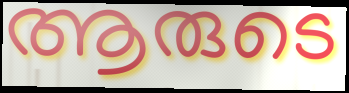
ആരുടെ